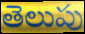
తెలుపు